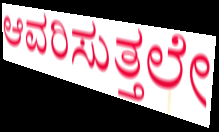
ಆವರಿಸುತ್ತಲೇ